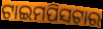
ଟାଇମପିସଟାର